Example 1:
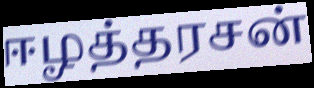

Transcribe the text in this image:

ஈழத்தரசன்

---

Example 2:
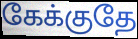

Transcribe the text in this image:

கேக்குதே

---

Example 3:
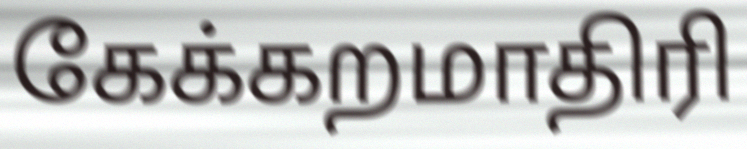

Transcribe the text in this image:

கேக்கறமாதிரி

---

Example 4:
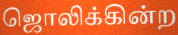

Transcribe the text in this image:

ஜொலிக்கின்ற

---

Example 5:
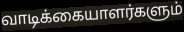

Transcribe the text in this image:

வாடிக்கையாளர்களும்